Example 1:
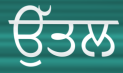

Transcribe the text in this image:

ਉੱਤਲ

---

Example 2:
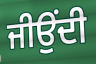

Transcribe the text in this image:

ਜੀਉਂਦੀ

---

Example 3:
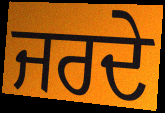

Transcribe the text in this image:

ਜਰਦੇ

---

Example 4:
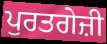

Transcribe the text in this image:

ਪੁਰਤਗੇਜ਼ੀ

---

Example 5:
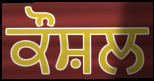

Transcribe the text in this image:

ਕੌਸ਼ਲ